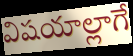
విషయాల్లాగే